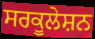
ਸਰਕੂਲੇਸ਼ਨ